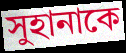
সুহানাকে